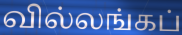
வில்லங்கப்